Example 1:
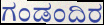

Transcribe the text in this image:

ಗಂಡಂದಿರ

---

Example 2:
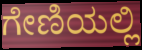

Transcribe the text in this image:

ಗೇಣಿಯಲ್ಲಿ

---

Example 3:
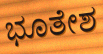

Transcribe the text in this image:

ಭೂತೇಶ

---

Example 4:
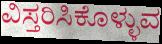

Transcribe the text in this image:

ವಿಸ್ತರಿಸಿಕೊಳ್ಳುವ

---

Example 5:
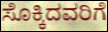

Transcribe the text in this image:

ಸೊಕ್ಕಿದವರಿಗೆ